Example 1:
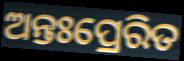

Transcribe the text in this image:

ଅନ୍ତଃପ୍ରେରିତ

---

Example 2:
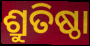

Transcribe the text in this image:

ଶ୍ରୁତିଷ୍ଠା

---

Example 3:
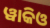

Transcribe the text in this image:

ୱାକିଓ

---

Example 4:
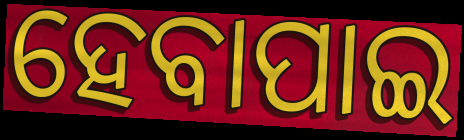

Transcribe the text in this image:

ହେବାପାଇ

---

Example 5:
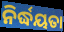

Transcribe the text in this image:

ନିର୍ଦ୍ଧୟତା